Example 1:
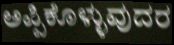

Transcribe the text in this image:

ಅಪ್ಪಿಕೊಳ್ಳುವುದರ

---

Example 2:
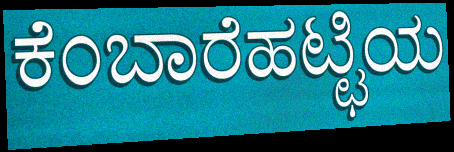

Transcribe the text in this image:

ಕೆಂಬಾರೆಹಟ್ಟಿಯ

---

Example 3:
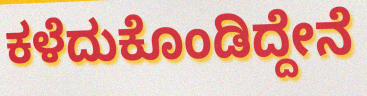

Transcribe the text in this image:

ಕಳೆದುಕೊಂಡಿದ್ದೇನೆ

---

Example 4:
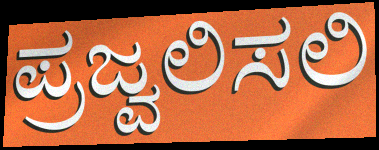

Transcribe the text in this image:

ಪ್ರಜ್ವಲಿಸಲಿ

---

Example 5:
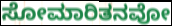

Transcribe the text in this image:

ಸೋಮಾರಿತನವೋ